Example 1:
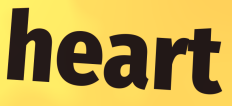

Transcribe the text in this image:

heart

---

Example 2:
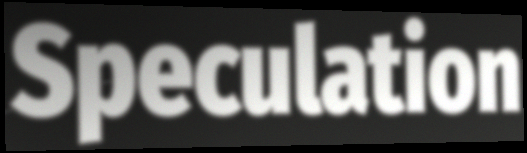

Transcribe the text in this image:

Speculation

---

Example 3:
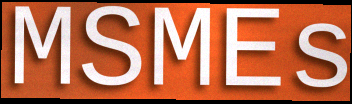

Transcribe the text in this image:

MSMEs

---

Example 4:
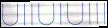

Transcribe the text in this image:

UIIUIUIII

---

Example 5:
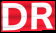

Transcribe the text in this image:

DR